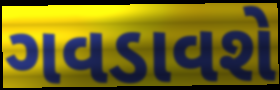
ગવડાવશે